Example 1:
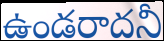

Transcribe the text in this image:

ఉండరాదనీ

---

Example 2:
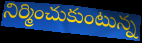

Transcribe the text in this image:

నిర్మించుకుంటున్న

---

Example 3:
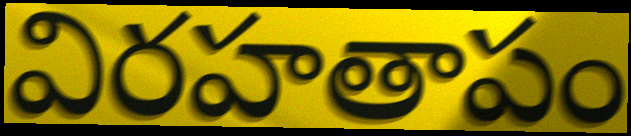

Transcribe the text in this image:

విరహతాపం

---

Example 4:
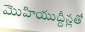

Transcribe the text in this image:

మొహియుద్దీన్లతో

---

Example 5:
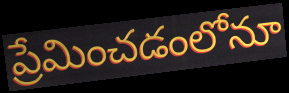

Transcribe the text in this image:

ప్రేమించడంలోనూ